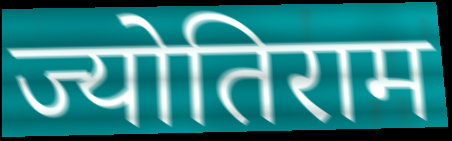
ज्योतिराम